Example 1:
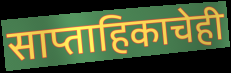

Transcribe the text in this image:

साप्ताहिकाचेही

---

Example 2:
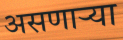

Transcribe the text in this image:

असणाऱ्या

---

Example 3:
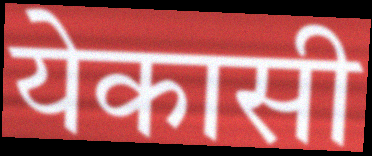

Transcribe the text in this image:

येकासी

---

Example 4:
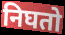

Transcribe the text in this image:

निघतो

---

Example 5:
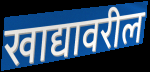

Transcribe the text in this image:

खाद्यावरील